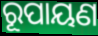
ରୂପାୟଣ